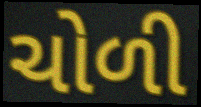
ચોળી